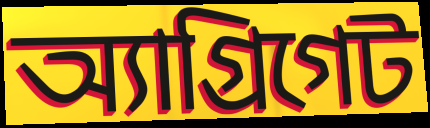
অ্যাগ্রিগেট